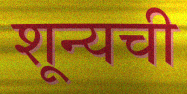
शून्यची